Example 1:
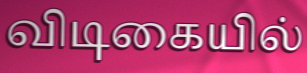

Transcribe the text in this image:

விடிகையில்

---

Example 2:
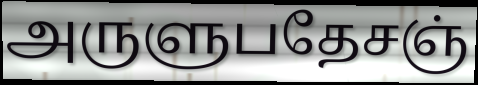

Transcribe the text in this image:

அருளுபதேசஞ்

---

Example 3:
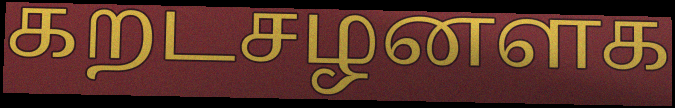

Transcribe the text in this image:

கறடசழனளக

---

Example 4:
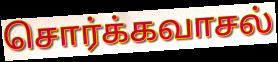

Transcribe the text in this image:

சொர்க்கவாசல்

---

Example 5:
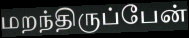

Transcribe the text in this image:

மறந்திருப்பேன்